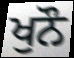
ਖੁਨੌ